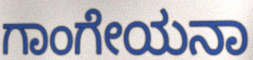
ಗಾಂಗೇಯನಾ